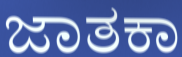
ಜಾತಕಾ